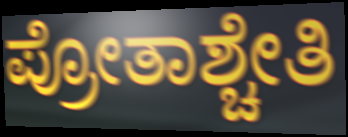
ಪ್ರೋತಾಶ್ಚೇತಿ